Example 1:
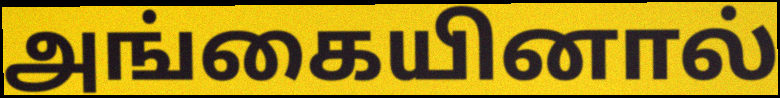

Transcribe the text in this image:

அங்கையினால்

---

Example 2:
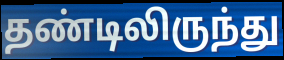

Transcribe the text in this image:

தண்டிலிருந்து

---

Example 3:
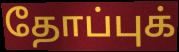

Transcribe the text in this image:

தோப்புக்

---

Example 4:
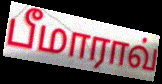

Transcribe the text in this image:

பீமாராவ்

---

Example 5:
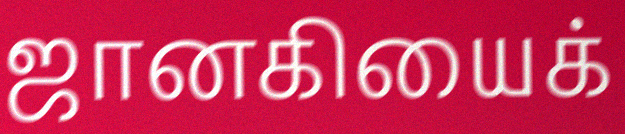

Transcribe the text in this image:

ஜானகியைக்